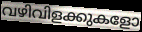
വഴിവിളക്കുകളോ